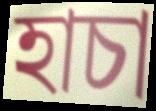
হাচা